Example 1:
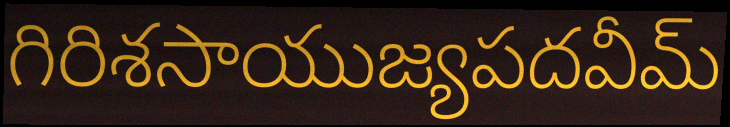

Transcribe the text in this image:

గిరిశసాయుజ్యపదవీమ్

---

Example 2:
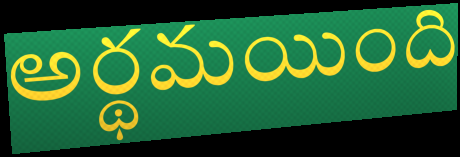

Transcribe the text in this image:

అర్థమయింది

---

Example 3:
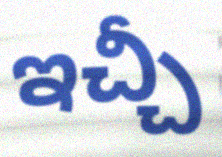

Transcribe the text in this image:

ఇచ్చీ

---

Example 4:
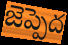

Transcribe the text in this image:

జెప్పెద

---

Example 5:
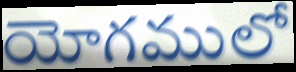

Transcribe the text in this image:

యోగములో